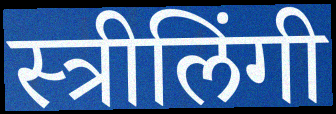
स्त्रीलिंगी